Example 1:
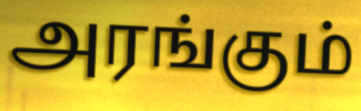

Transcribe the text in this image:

அரங்கும்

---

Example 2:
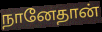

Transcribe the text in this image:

நானேதான்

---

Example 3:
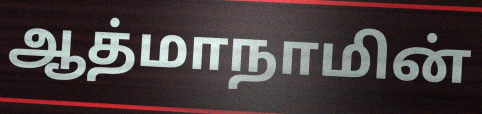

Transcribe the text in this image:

ஆத்மாநாமின்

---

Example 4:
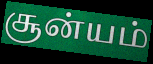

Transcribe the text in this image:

சூன்யம்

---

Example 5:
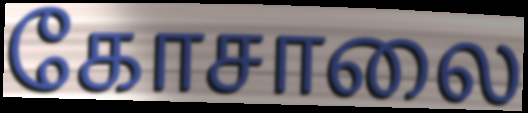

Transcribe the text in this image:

கோசாலை